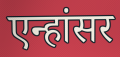
एन्हांसर